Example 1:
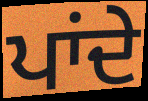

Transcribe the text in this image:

ਪਾਂਦੇ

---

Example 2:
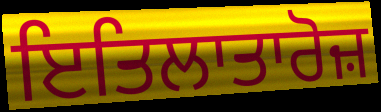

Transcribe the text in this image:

ਇਤਿਲਾਤਾਰੋਜ਼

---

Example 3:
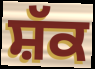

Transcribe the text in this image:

ਸ਼ੱਕ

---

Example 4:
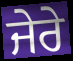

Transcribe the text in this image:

ਜੇਰੇ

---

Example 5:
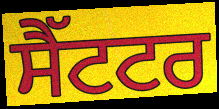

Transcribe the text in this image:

ਸੈੱਟਟਰ